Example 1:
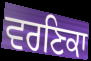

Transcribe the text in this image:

ਵਰਣਿਕਾ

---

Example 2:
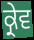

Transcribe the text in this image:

ਕ੍ਰੇਵ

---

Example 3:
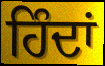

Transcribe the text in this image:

ਹਿੰਦਾਂ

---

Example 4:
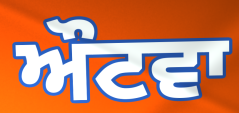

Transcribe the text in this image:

ਔਟਵਾ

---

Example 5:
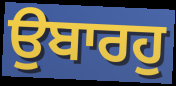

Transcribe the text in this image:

ਉਬਾਰਹੁ